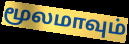
மூலமாவும்